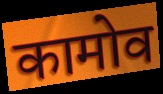
कामोव